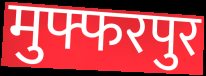
मुफ्फरपुर